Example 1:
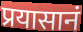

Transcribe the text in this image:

प्रयासानं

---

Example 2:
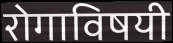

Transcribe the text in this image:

रोगाविषयी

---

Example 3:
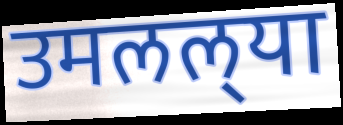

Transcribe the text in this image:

उमलल्या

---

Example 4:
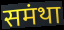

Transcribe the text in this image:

समंथा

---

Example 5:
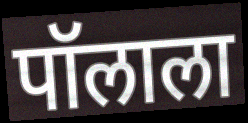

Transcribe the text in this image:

पॉलाला